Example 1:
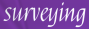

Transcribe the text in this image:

surveying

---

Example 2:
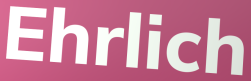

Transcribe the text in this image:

Ehrlich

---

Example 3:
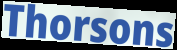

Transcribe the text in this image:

Thorsons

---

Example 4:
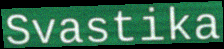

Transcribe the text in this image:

Svastika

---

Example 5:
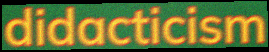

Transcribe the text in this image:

didacticism